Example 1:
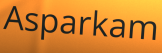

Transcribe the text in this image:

Asparkam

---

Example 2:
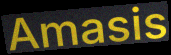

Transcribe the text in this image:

Amasis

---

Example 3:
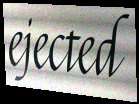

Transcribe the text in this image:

ejected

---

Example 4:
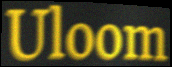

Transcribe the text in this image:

Uloom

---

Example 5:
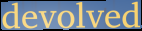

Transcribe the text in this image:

devolved